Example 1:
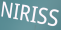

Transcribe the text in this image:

NIRISS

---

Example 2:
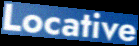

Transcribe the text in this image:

Locative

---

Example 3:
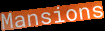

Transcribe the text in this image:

Mansions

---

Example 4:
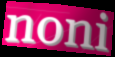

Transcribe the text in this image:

noni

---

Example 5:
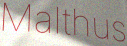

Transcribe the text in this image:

Malthus